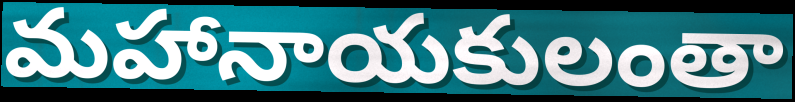
మహానాయకులంతా